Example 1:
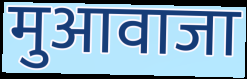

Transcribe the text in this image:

मुआवाजा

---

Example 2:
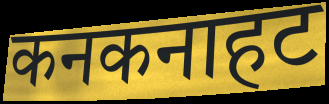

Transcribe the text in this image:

कनकनाहट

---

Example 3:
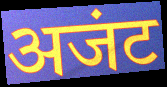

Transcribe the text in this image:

अजंट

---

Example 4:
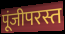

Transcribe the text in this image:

पूंजीपरस्त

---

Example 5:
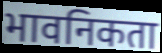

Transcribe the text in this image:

भावनिकता